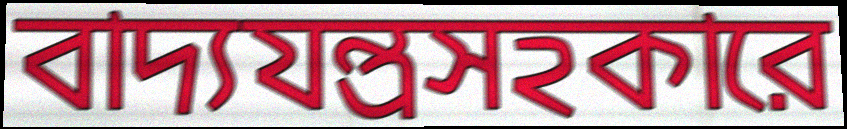
বাদ্যযন্ত্রসহকারে